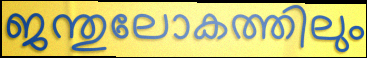
ജന്തുലോകത്തിലും